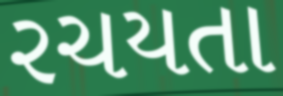
રચયતા